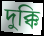
দুক্কি